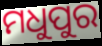
ମଧୁପୁର